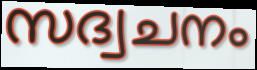
സദ്വചനം